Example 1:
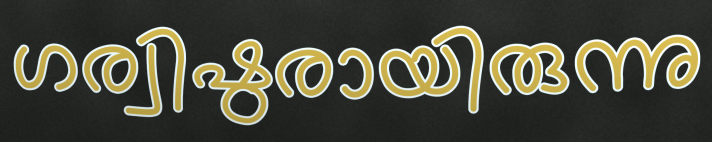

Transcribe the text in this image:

ഗര്വിഷ്ഠരായിരുന്നു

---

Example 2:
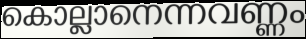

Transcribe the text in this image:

കൊല്ലാനെന്നവണ്ണം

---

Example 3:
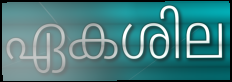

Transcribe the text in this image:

ഏകശില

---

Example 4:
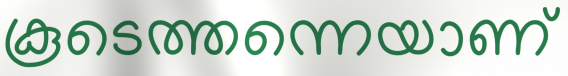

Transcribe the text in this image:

കൂടെത്തന്നെയാണ്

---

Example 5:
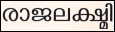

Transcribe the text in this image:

രാജലക്ഷ്മി